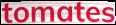
tomates